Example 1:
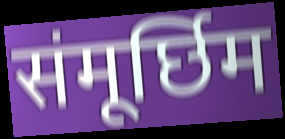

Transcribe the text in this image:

संमूर्छिम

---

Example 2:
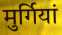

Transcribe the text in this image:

मुर्गियां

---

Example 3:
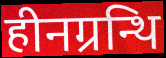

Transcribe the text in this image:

हीनग्रन्थि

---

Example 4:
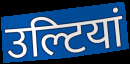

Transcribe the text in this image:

उल्‍टियां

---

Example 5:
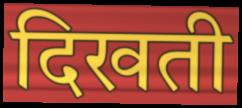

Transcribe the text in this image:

दिखती